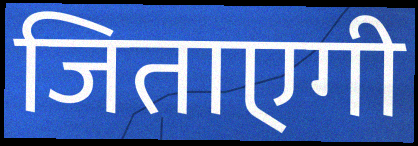
जिताएगी